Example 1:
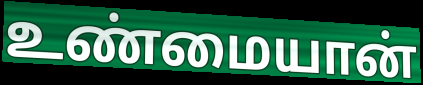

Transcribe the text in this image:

உண்மையான்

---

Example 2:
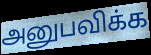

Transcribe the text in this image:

அனுபவிக்க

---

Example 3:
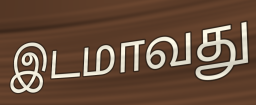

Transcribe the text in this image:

இடமாவது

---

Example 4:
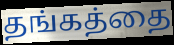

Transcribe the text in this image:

தங்கத்தை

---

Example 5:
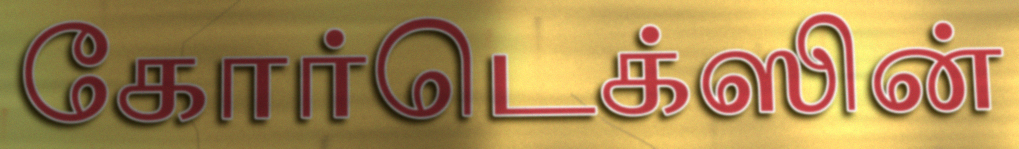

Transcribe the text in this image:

கோர்டெக்ஸின்